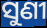
ସୁଣୀ